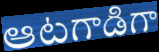
ఆటగాడిగా